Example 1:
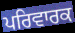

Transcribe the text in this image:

ਪਰਿਵਾਰਕ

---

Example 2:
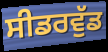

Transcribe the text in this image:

ਸੀਡਰਵੁੱਡ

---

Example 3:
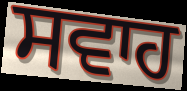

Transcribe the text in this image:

ਸਵਾਹ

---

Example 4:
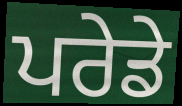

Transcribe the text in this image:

ਪਰੇਡੇ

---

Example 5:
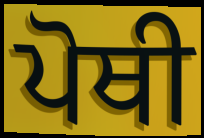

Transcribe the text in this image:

ਪੋਥੀ